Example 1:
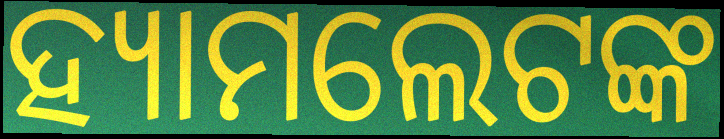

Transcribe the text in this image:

ହ୍ୟାମଲେଟଙ୍କ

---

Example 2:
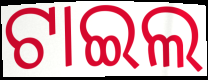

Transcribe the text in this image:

ଟାଇଲ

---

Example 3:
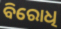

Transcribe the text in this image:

ବିରୋଧି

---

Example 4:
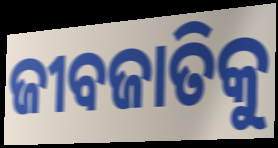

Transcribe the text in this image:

ଜୀବଜାତିକୁ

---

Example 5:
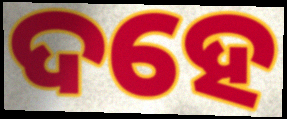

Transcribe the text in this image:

ଦହେ